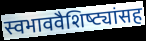
स्वभाववैशिष्ट्यांसह